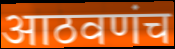
आठवणंच